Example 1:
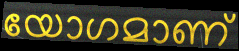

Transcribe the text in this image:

യോഗമാണ്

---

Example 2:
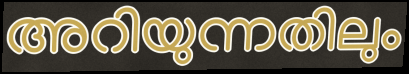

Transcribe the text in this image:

അറിയുന്നതിലും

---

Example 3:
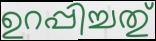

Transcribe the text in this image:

ഉറപ്പിച്ചതു്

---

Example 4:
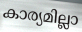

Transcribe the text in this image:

കാര്യമില്ലാ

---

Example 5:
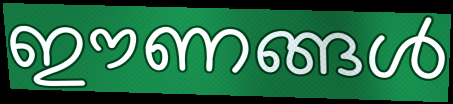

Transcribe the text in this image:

ഈണങ്ങൾ